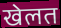
खेलत